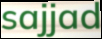
sajjad